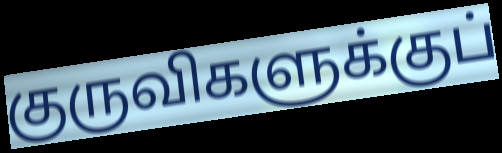
குருவிகளுக்குப்